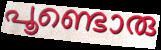
പൂണ്ടൊരു